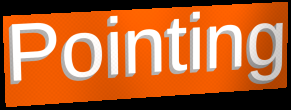
Pointing